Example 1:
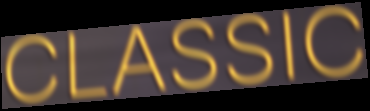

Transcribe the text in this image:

CLASSIC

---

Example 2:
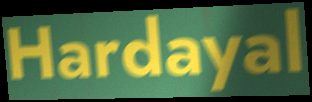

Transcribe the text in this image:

Hardayal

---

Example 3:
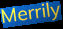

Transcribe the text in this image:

Merrily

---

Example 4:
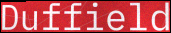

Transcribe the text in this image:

Duffield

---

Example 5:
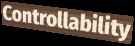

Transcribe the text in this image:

Controllability